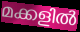
മക്കളിൽ